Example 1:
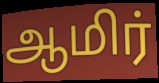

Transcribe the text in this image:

ஆமிர்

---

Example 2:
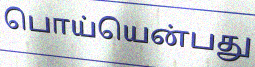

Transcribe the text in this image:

பொய்யென்பது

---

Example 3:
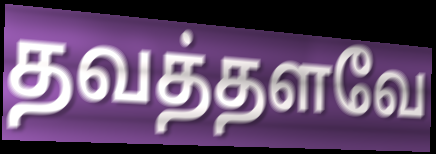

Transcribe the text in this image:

தவத்தளவே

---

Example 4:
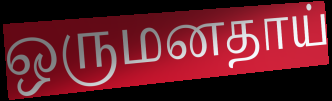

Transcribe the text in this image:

ஒருமனதாய்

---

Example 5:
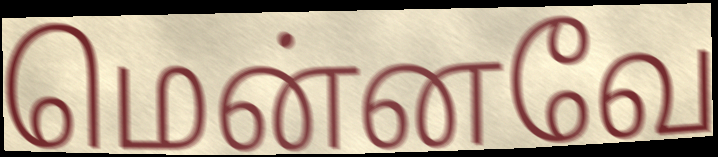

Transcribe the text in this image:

மென்னவே